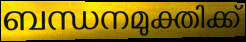
ബന്ധനമുക്തിക്ക്